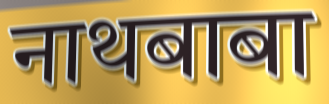
नाथबाबा